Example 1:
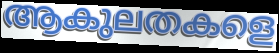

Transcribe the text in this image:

ആകുലതകളെ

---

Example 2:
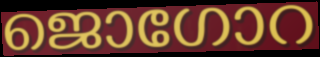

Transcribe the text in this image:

ജൊഗോറ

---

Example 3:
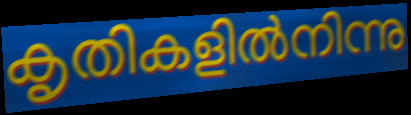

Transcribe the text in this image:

കൃതികളിൽനിന്നു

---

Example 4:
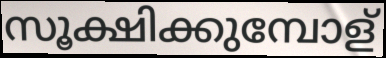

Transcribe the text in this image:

സൂക്ഷിക്കുമ്പോള്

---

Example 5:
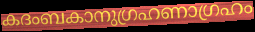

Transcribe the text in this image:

കദംബകാനുഗ്രഹണാഗ്രഹം